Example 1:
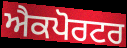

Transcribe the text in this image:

ਐਕਪੋਰਟਰ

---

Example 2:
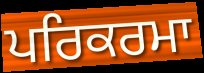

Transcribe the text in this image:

ਪਰਿਕਰਮਾ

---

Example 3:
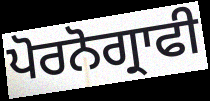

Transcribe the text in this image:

ਪੋਰਨੋਗ੍ਰਾਫੀ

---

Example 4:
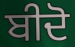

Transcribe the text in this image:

ਬੀਦੋ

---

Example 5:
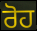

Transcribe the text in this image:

ਰੋਹ